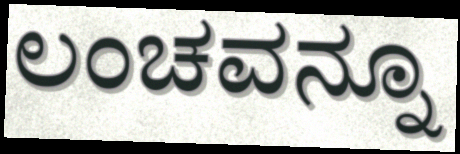
ಲಂಚವನ್ನೂ